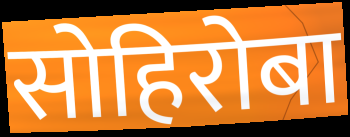
सोहिरोबा